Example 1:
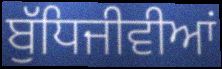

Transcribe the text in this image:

ਬੁੱਧਿਜੀਵੀਆਂ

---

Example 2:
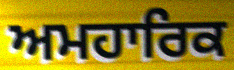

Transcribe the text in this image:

ਅਮਹਾਰਿਕ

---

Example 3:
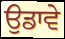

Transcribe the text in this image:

ਉਡਾਵੇ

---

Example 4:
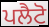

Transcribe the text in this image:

ਪਲੈਟੋ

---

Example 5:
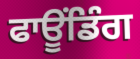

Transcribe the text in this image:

ਫਾਊਂਡਿੰਗ